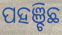
ପହଞ୍ଚିଛ